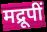
मद्रूपीं